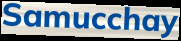
Samucchay